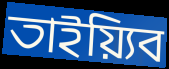
তাইয়্যিব